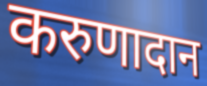
करुणादान